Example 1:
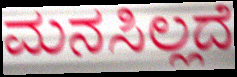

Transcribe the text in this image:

ಮನಸಿಲ್ಲದೆ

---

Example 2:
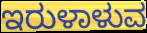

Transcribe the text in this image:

ಇರುಳಾಳುವ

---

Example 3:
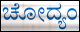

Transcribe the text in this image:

ಚೋದ್ಯಂ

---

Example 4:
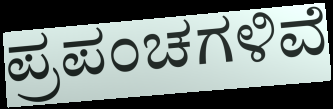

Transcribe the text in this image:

ಪ್ರಪಂಚಗಳಿವೆ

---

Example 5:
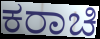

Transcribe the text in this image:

ಕರಾಚಿ